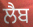
ਲੈਬ